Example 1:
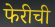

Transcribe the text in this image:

फेरीची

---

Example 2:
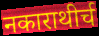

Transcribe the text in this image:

नकाराथीर्च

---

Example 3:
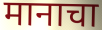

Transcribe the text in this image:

मानाचा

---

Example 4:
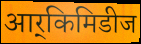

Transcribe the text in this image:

आर्किमिडीज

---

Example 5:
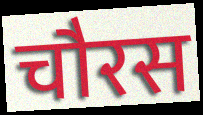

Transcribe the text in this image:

चौरस